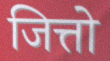
जित्तो